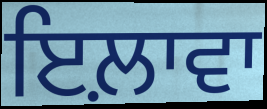
ਇਲ਼ਾਵਾ